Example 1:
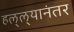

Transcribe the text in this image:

हल्ल्यानंतर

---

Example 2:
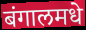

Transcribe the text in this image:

बंगालमधे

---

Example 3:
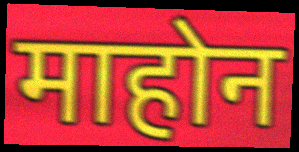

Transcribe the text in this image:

माहोन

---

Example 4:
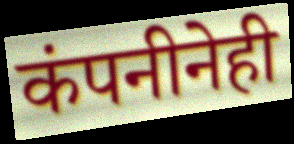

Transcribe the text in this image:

कंपनीनेही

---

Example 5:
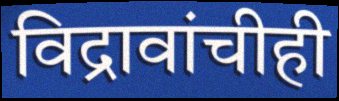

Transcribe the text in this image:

विद्रावांचीही